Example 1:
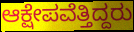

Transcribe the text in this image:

ಆಕ್ಷೇಪವೆತ್ತಿದ್ದರು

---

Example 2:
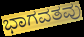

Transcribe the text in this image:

ಭಾಗವತವು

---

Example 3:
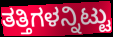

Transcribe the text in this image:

ತತ್ತಿಗಳನ್ನಿಟ್ಟು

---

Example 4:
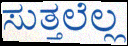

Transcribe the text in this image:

ಸುತ್ತಲೆಲ್ಲ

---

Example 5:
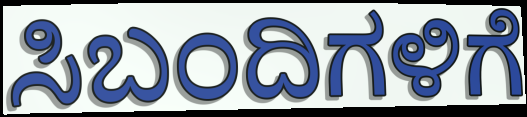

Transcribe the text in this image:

ಸಿಬಂದಿಗಳಿಗೆ